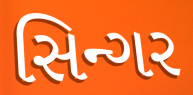
સિન્ગર